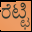
ರೆಟ್ಟಿ